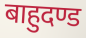
बाहुदण्ड